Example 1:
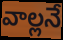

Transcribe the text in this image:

వాల్లనే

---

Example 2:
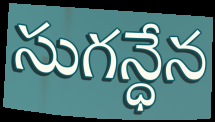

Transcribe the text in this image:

సుగన్ధేన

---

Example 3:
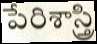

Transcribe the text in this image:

పేరిశాస్త్రి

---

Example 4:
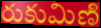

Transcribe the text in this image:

రుకుమిణి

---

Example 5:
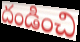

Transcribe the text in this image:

దండించి